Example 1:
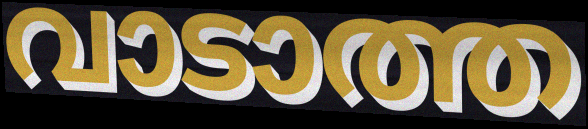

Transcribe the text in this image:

വാടാത്ത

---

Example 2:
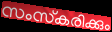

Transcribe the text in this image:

സംസ്‌കരിക്കും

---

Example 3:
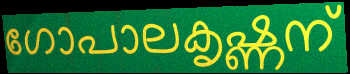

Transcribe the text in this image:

ഗോപാലകൃഷ്ണന്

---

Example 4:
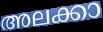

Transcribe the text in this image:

അലക്കാ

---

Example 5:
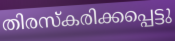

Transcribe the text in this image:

തിരസ്കരിക്കപ്പെട്ടു